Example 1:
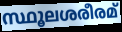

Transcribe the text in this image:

സ്ഥൂലശരീരമ്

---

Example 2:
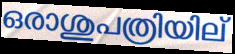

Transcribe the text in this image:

ഒരാശുപത്രിയില്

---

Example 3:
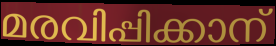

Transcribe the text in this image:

മരവിപ്പിക്കാന്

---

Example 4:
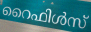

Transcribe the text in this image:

റൈഫിൾസ്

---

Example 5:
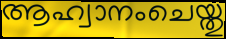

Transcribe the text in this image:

ആഹ്വാനംചെയ്തു